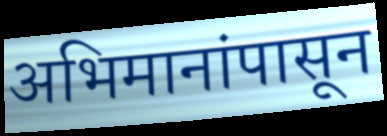
अभिमानांपासून